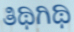
ತಿಥಿಗಿಥಿ